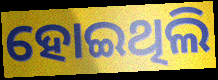
ହୋଇଥିଲି